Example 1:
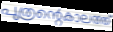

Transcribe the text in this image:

പുത്രന്റെകാലത്ത്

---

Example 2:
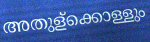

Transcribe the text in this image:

അതുള്ക്കൊള്ളും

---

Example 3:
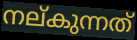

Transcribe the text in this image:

നല്കുന്നത്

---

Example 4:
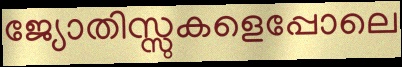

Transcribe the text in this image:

ജ്യോതിസ്സുകളെപ്പോലെ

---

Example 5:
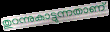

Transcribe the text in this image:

തുറന്നുകാട്ടുന്നതാണ്